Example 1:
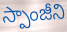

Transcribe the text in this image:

స్పాంజీని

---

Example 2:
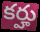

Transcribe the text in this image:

కర్హు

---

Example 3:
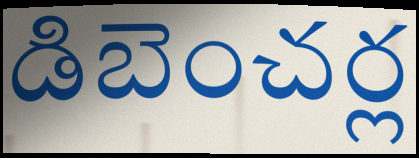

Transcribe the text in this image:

డిబెంచర్ల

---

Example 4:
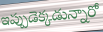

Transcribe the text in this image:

ఇప్పుడెక్కడున్నారో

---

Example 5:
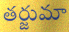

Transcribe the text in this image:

తర్జుమా